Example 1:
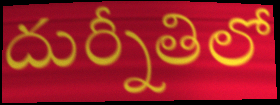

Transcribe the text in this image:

దుర్నీతిలో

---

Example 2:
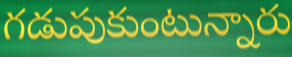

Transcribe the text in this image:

గడుపుకుంటున్నారు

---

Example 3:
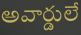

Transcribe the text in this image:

అవార్డులే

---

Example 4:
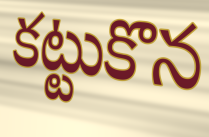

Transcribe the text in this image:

కట్టుకొన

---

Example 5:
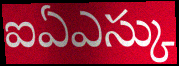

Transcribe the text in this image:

ఐఏఎస్కు